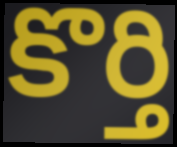
కొర్తి